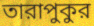
তারাপুকুর